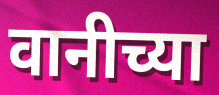
वानीच्या